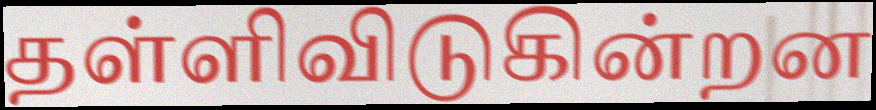
தள்ளிவிடுகின்றன